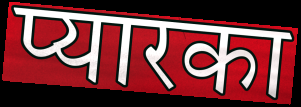
प्यारका